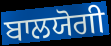
ਬਾਲਯੋਗੀ